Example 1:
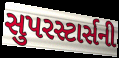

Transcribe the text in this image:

સુપરસ્ટાર્સની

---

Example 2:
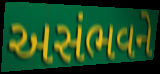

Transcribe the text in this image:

અસંભવને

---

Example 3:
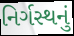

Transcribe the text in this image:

નિર્ગસ્થનું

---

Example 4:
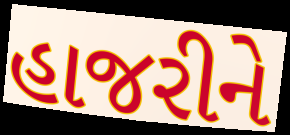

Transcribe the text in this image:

હાજરીને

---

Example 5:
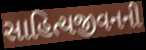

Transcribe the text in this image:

સાહિત્યજીવનની